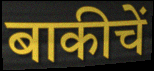
बाकीचें